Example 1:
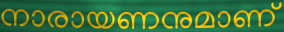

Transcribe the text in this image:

നാരായണനുമാണ്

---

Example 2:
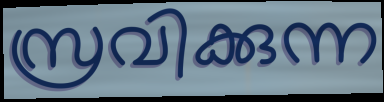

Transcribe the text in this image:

സ്രവിക്കുന്ന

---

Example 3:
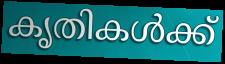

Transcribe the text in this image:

കൃതികൾക്ക്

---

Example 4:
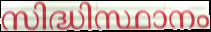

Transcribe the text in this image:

സിദ്ധിസ്ഥാനം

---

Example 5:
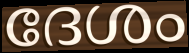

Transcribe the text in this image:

ദേശം